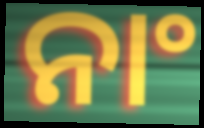
ନାଂ